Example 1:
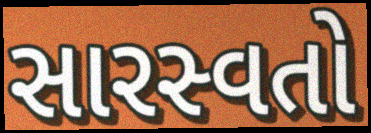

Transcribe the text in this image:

સારસ્વતો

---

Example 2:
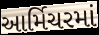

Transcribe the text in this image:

આર્મિચરમાં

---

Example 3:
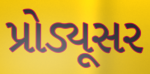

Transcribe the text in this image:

પ્રોડ્યૂસર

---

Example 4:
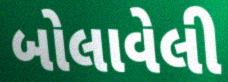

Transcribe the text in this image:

બોલાવેલી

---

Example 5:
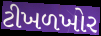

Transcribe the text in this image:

ટીખળખોર